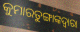
କୁମାରତୁଙ୍ଗାଙ୍କଦ୍ୱାରା